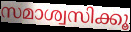
സമാശ്വസിക്കൂ